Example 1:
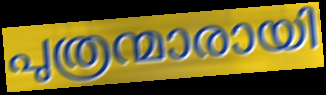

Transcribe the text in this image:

പുത്രന്മാരായി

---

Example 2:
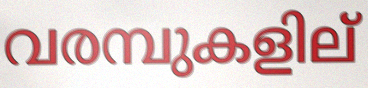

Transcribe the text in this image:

വരമ്പുകളില്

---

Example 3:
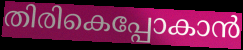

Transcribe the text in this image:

തിരികെപ്പോകാൻ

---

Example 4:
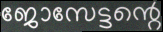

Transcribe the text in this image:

ജോസേട്ടന്റെ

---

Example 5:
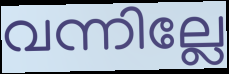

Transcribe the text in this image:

വന്നില്ലേ